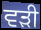
ਵੜੀ